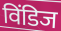
विंडिज